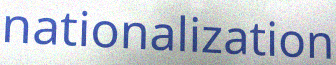
nationalization